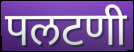
पलटणी